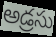
అడ్రసు